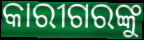
କାରୀଗରଙ୍କୁ